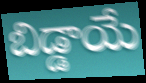
బిడ్డాయే